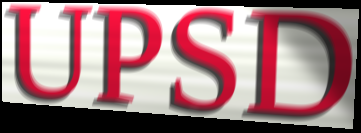
UPSD